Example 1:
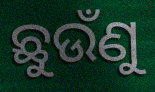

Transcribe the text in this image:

ଛୁଉଁଣୁ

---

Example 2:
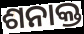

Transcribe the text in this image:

ଶନାକ୍ତ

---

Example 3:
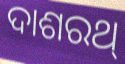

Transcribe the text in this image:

ଦାଶରଥ୍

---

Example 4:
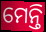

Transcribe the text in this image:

ମେନ୍ତି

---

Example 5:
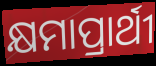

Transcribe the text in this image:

କ୍ଷମାପ୍ରାର୍ଥୀ